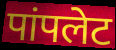
पांपलेट